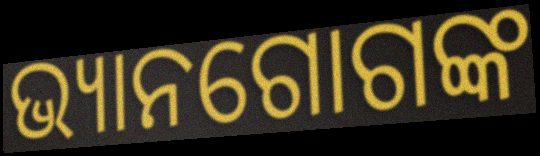
ଭ୍ୟାନଗୋଗଙ୍କ